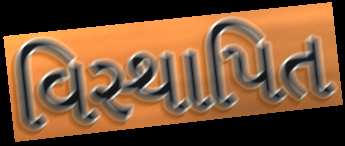
વિસ્થાપિત